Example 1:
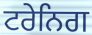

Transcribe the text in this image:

ਟਰੇਨਿਗ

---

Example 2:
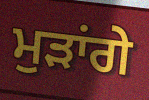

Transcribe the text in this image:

ਮੁੜਾਂਗੇ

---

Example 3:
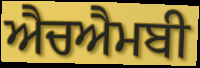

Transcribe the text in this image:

ਐਚਐਮਬੀ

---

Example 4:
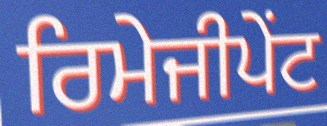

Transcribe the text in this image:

ਰਿਮੇਜੀਪੇਂਟ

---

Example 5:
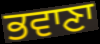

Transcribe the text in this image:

ਭਵਾਣਾ